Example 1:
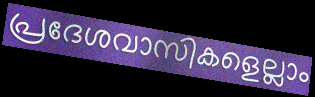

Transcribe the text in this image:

പ്രദേശവാസികളെല്ലാം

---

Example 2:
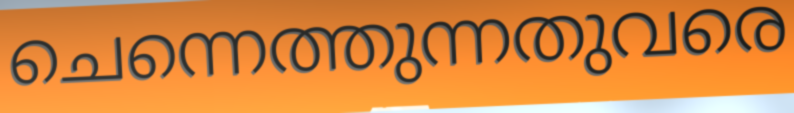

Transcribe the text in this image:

ചെന്നെത്തുന്നതുവരെ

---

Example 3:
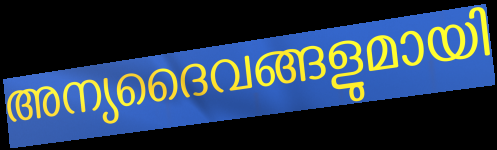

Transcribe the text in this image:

അന്യദൈവങ്ങളുമായി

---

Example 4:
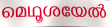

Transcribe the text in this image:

മെഥൂശയേൽ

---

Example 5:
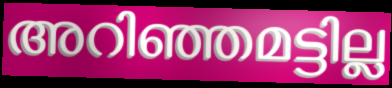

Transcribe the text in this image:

അറിഞ്ഞമട്ടില്ല